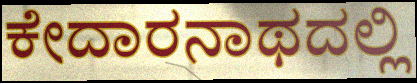
ಕೇದಾರನಾಥದಲ್ಲಿ